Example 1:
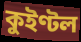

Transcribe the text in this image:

কুইণ্টল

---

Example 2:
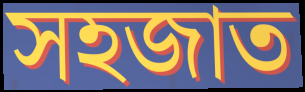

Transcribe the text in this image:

সহজাত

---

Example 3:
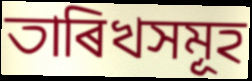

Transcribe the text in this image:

তাৰিখসমূহ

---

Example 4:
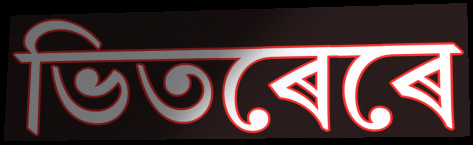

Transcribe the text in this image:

ভিতৰেৰে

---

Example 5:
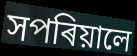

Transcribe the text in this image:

সপৰিয়ালে